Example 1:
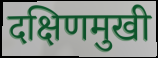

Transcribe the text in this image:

दक्षिणमुखी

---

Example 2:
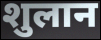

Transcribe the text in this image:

शुलान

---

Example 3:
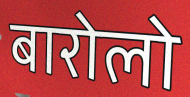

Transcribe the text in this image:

बारोलो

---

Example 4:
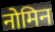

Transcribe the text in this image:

नोमिन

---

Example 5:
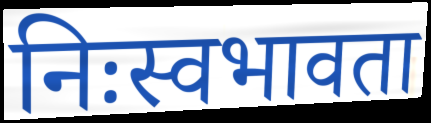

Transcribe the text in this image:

निःस्वभावता